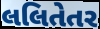
લલિતેતર